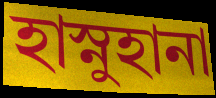
হাস্নুহানা